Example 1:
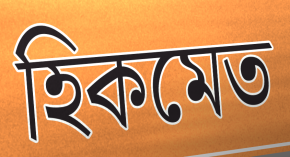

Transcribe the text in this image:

হিকমেত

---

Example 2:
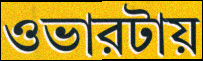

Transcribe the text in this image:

ওভারটায়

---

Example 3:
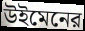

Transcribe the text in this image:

উইমেনের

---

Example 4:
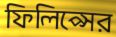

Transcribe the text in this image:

ফিলিপ্সের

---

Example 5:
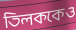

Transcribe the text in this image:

তিলককেও